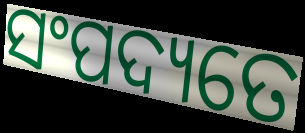
ସଂପଦ୍ୟତେ